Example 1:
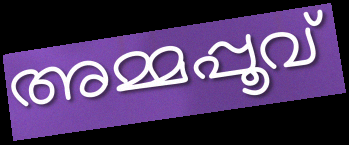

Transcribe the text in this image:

അമ്മപ്പൂവ്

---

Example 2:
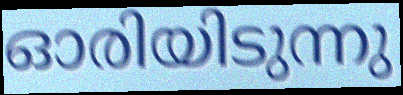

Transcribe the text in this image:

ഓരിയിടുന്നു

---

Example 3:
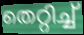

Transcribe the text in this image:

തെറ്റിച്ച്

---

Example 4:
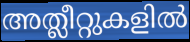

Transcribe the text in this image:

അത്ലീറ്റുകളിൽ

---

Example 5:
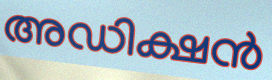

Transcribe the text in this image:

അഡിക്ഷൻ